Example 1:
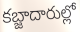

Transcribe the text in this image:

కబ్జాదారుల్లో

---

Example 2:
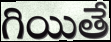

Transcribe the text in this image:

గియితే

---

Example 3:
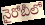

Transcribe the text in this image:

నైరోబీలో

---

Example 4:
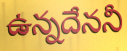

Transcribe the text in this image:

ఉన్నదేననీ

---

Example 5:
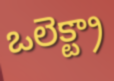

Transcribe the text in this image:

ఒలెక్ట్రా